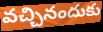
వచ్చినందుకు